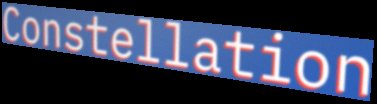
Constellation